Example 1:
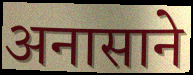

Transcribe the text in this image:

अनासाने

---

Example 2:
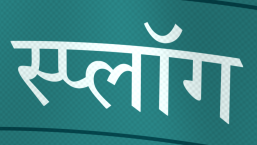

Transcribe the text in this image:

स्प्लॉग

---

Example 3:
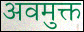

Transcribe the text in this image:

अवमुक्त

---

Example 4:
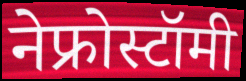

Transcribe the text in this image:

नेफ्रोस्टॉमी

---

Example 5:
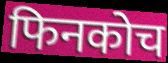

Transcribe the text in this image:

फिनकोच